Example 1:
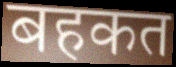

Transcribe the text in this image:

बहकत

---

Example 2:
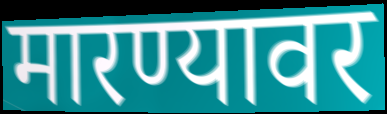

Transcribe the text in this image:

मारण्यावर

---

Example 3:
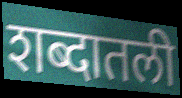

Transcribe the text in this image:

शब्दातली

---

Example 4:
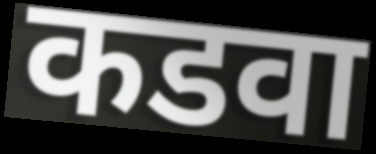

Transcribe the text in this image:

कडवा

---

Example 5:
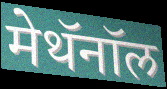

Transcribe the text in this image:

मेथॅनॉल